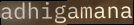
adhigamana